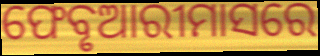
ଫେବୃଆରୀମାସରେ